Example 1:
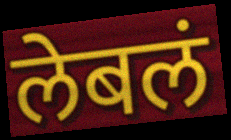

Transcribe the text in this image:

लेबलं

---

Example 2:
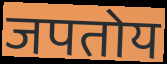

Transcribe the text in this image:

जपतोय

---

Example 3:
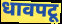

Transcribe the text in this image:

धावपटू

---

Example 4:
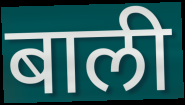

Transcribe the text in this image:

बाली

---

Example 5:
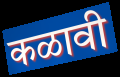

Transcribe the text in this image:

कळावी